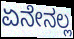
ಏನೇನಲ್ಲ